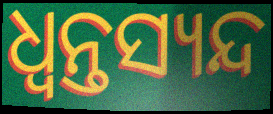
ଧ୍ଵନ୍ତସ୍ୟନ୍ଦ